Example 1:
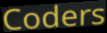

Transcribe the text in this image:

Coders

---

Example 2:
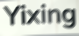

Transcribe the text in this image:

Yixing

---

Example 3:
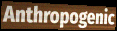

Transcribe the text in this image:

Anthropogenic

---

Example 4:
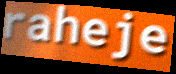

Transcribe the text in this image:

raheje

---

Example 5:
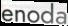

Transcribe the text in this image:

enoda